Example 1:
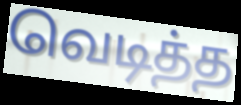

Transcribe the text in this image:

வெடித்த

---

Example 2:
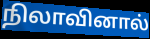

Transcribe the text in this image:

நிலாவினால்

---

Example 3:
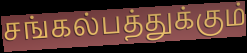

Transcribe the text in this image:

சங்கல்பத்துக்கும்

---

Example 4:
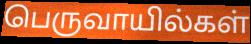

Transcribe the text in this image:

பெருவாயில்கள்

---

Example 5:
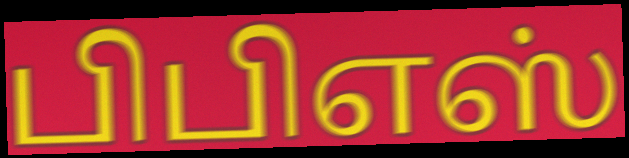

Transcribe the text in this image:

பிபிஎஸ்